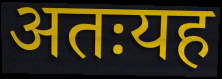
अतःयह